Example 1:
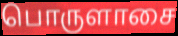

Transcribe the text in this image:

பொருளாசை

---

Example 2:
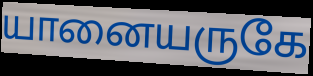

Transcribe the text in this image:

யானையருகே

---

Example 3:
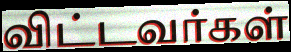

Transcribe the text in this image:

விட்டவர்கள்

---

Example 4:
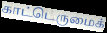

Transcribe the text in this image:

காட்டெருமைக்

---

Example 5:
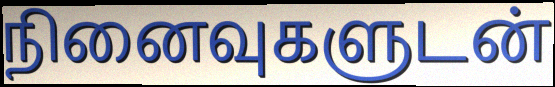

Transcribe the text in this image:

நினைவுகளுடன்